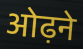
ओढ़ने